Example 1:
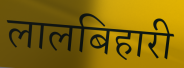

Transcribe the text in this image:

लालबिहारी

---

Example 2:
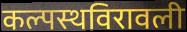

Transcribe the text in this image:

कल्पस्थविरावली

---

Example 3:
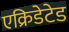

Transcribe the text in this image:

एक्रिडेटेड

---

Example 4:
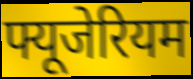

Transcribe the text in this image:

फ्यूजेरियम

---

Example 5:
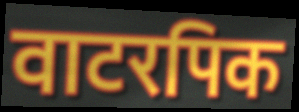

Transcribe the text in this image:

वाटरपिक